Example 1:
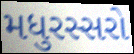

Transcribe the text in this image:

મધુરસ્સરો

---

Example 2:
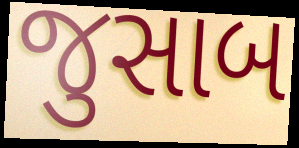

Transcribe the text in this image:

જુસાબ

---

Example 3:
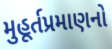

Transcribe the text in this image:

મુહૂર્તપ્રમાણનો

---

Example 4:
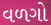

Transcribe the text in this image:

વળગો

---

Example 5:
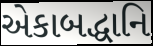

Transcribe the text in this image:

એકાબદ્ધાનિ